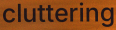
cluttering